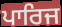
ਪਾਰਿਜ